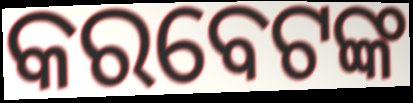
କରବେଟଙ୍କ